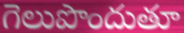
గెలుపొందుతూ